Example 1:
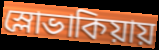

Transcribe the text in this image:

স্লোভাকিয়ায়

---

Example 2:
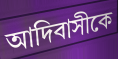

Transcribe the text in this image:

আদিবাসীকে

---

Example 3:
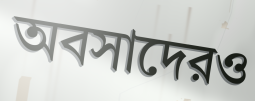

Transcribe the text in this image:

অবসাদেরও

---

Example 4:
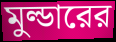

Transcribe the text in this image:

মুল্ডারের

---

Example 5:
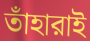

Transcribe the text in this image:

তাঁহারাই